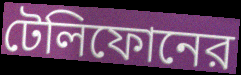
টেলিফোনের